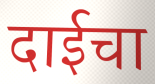
दाईचा